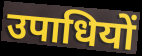
उपाधियों